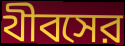
থীবসের